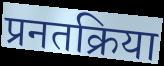
प्रनतक्रिया